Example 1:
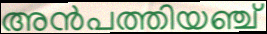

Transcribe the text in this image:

അൻപത്തിയഞ്ച്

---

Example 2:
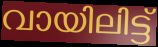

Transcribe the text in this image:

വായിലിട്ട്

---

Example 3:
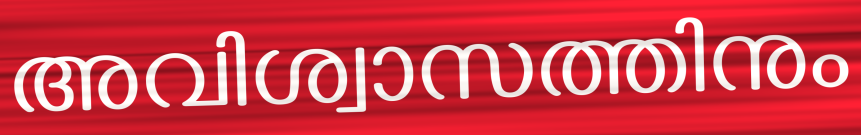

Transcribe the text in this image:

അവിശ്വാസത്തിനും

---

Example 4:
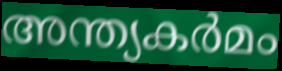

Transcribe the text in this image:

അന്ത്യകർമം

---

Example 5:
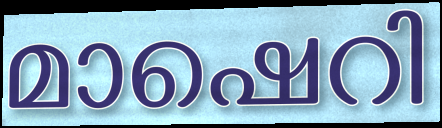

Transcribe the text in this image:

മാഷെറി